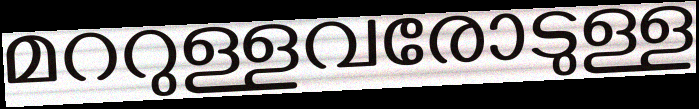
മററുള്ളവരോടുള്ള